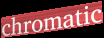
chromatic